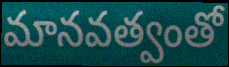
మానవత్వంతో